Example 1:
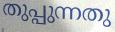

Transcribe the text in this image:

തുപ്പുന്നതു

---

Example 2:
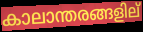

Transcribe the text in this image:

കാലാന്തരങ്ങളില്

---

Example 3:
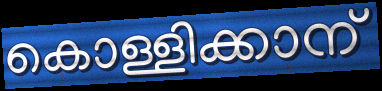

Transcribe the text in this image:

കൊള്ളിക്കാന്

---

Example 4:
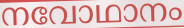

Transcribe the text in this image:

നവോഥാനം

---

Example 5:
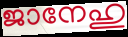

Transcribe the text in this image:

ജാനേഹു